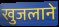
खुजलाने